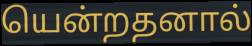
யென்றதனால்